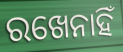
ରଖେନାହିଁ